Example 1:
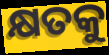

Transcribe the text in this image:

କ୍ଷତକୁ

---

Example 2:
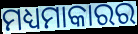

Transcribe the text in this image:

ମଧ୍ୟମାକାରର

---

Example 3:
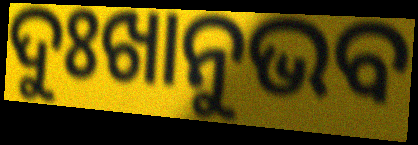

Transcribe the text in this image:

ଦୁଃଖାନୁଭବ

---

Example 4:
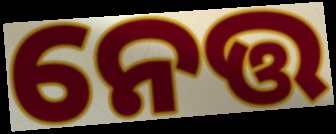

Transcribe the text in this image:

ନେତ୍ତ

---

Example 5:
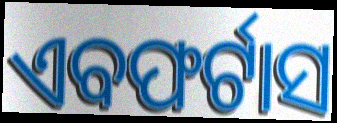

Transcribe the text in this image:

ଏବଫର୍ଟାସ